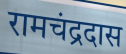
रामचंद्रदास